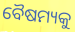
ବୈଷମ୍ୟକୁ